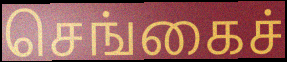
செங்கைச்